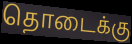
தொடைக்கு